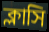
ক্লাসি